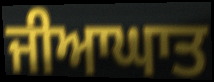
ਜੀਆਘਾਤ